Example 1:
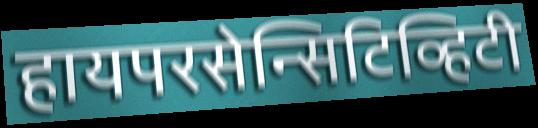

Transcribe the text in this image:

हायपरसेन्सिटिव्हिटी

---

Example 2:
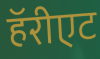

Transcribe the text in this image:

हॅरीएट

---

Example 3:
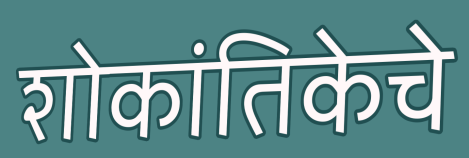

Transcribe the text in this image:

शोकांतिकेचे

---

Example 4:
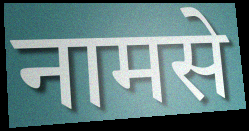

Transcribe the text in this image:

नामसे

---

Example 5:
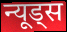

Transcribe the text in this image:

न्यूड्स